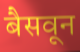
बैसवून